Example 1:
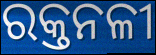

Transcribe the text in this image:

ରକ୍ତନଳୀ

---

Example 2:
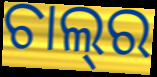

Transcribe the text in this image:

ଚାଲ୍‌ର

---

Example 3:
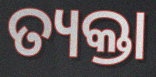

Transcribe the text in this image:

ତ୍ୟକ୍ତା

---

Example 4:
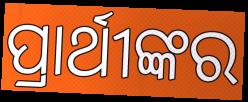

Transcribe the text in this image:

ପ୍ରାର୍ଥୀଙ୍କର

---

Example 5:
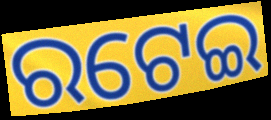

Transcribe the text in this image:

ରଟେଇ